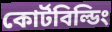
কোর্টবিল্ডিং